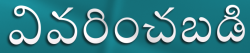
వివరించబడి